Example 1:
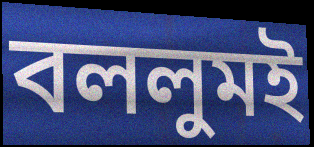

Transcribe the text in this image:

বললুমই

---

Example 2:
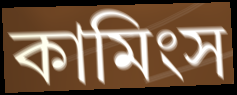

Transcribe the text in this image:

কামিংস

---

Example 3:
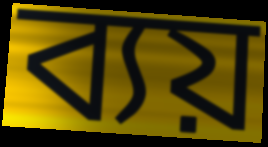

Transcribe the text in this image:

ব্যয়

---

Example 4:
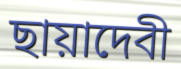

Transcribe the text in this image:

ছায়াদেবী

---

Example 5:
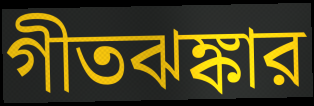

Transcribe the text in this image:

গীতঝঙ্কার